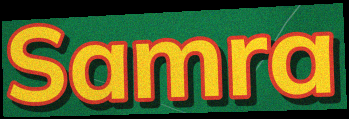
Samra